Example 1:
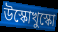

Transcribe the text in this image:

উস্কোখুস্কো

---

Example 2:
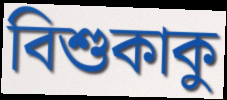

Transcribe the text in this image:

বিশুকাকু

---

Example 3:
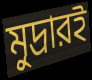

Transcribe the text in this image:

মুদ্রারই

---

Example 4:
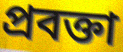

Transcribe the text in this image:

প্রবক্তা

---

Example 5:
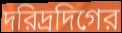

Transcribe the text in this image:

দরিদ্রদিগের